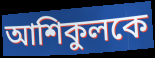
আশিকুলকে